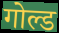
गोल्ड